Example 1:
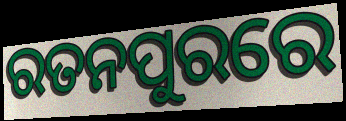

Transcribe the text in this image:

ରତନପୁରରେ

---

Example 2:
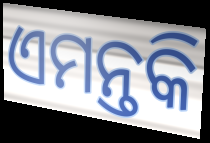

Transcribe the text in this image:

ଏମନ୍ତକି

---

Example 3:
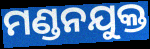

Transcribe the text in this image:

ମଣ୍ଡନଯୁକ୍ତ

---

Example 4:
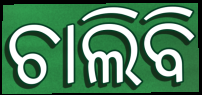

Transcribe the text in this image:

ଚାଲିବି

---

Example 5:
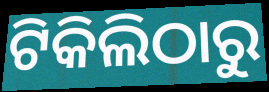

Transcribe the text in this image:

ଟିକିଲିଠାରୁ